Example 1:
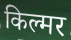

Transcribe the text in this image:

किल्मर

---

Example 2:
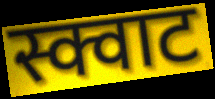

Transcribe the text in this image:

स्क्वाट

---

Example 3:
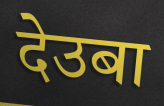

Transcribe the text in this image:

देउबा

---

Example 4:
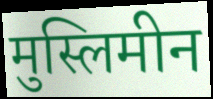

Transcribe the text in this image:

मुस्लिमीन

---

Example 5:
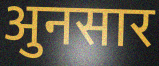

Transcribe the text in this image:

अुनसार